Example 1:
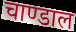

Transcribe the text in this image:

चाण्डाल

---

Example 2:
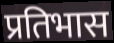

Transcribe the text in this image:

प्रतिभास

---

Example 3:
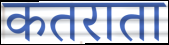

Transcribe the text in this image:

कतराता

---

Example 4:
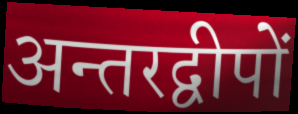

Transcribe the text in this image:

अन्तरद्वीपों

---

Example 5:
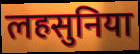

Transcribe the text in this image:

लहसुनिया